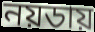
নয়ডায়